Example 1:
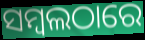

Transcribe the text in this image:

ସମ୍ବଲଠାରେ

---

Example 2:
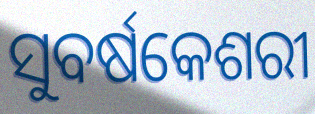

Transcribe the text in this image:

ସୁବର୍ଷକେଶରୀ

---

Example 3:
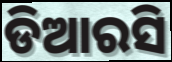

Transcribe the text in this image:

ଡିଆରସି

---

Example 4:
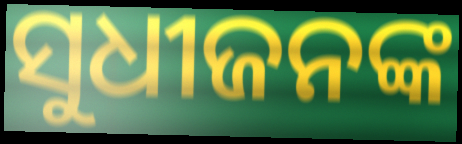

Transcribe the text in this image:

ସୁଧୀଜନଙ୍କ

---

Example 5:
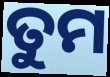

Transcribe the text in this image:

ତୁମ